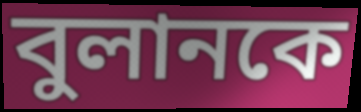
বুলানকে